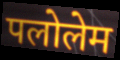
पलोलेम